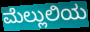
ಮೆಲ್ಲುಲಿಯ